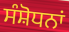
ਸੰਸ਼ੋਧਨਾਂ